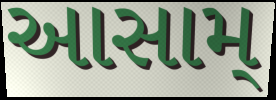
આસામ્